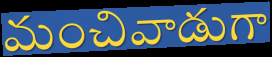
మంచివాడుగా